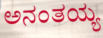
ಅನಂತಯ್ಯ